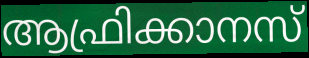
ആഫ്രിക്കാനസ്